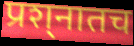
प्रश्नातच